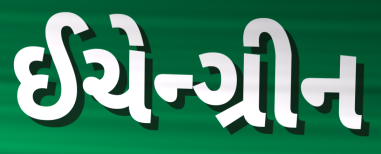
ઈચેન્ગ્રીન